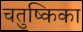
चतुष्किका